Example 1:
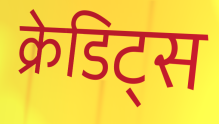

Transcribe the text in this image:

क्रेडिट्स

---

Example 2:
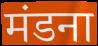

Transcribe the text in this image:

मंडना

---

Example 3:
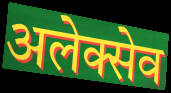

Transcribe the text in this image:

अलेक्सेव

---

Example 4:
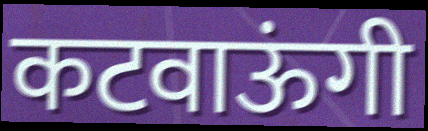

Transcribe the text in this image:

कटवाऊंगी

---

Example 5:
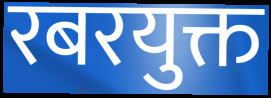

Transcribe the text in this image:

रबरयुक्त